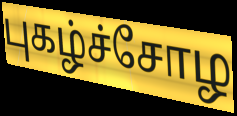
புகழ்ச்சோழ